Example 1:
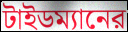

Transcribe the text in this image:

টাইডম্যানের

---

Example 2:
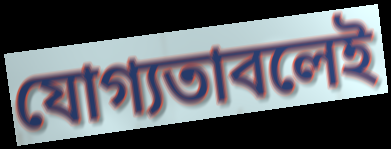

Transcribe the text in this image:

যোগ্যতাবলেই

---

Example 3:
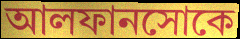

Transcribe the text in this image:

আলফানসোকে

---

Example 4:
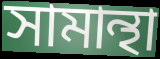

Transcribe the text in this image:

সামান্থা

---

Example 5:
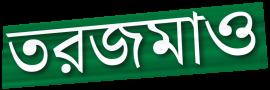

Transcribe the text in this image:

তরজমাও